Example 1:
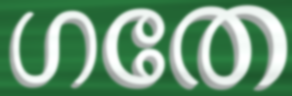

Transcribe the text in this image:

ഗതേ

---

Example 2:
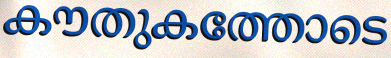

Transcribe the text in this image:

കൗതുകത്തോടെ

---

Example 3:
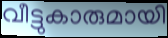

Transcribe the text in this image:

വീട്ടുകാരുമായി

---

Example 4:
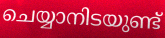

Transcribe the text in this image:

ചെയ്യാനിടയുണ്ട്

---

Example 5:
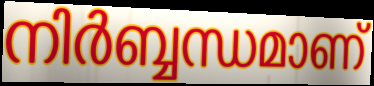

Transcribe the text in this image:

നിർബ്ബന്ധമാണ്